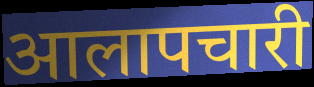
आलापचारी